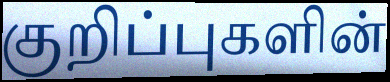
குறிப்புகளின்